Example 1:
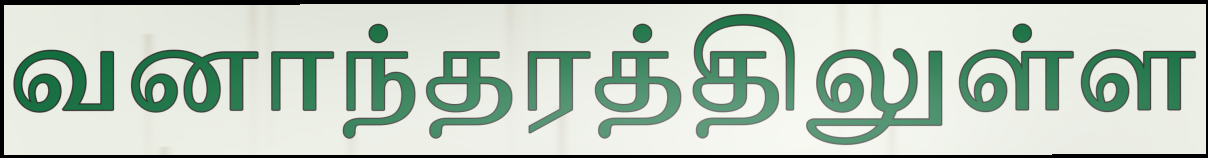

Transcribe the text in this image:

வனாந்தரத்திலுள்ள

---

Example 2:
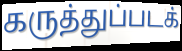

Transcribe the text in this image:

கருத்துப்படக்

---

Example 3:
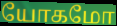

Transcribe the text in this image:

யோகமோ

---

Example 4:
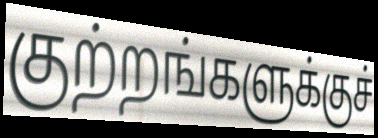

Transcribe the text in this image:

குற்றங்களுக்குச்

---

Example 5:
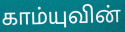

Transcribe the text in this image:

காம்யுவின்